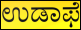
ಉಡಾಫೆ